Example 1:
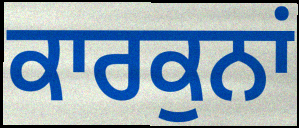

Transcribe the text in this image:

ਕਾਰਕੁਨਾਂ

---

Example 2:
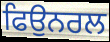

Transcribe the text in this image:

ਫਿਉਨਰਲ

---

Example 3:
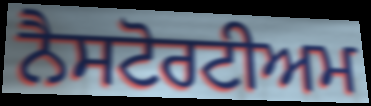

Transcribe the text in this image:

ਨੈਸਟੋਰਟੀਅਮ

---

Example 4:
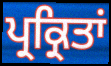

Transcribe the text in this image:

ਪ੍ਰਕ੍ਰਿਤਾਂ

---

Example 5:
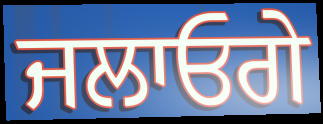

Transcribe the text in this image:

ਜਲਾਓਗੇ